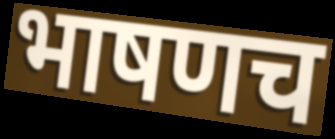
भाषणच